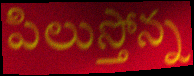
పిలుస్తోన్న